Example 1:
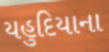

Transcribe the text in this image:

યહુદિયાના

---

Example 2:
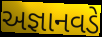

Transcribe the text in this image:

અજ્ઞાનવડે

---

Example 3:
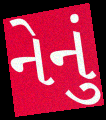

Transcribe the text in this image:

નેનું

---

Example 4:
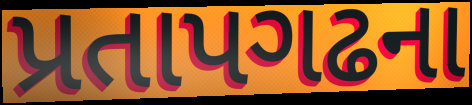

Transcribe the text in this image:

પ્રતાપગઢના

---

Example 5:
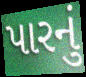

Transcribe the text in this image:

પારનું